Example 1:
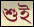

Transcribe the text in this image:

শুই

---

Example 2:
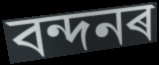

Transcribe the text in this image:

বন্দনৰ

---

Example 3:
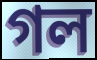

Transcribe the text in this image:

গল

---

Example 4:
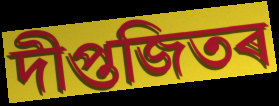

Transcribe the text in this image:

দীপ্তজিতৰ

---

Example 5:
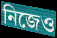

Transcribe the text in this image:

নিজেও